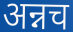
अन्नच